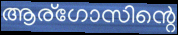
ആര്ഗോസിന്റെ